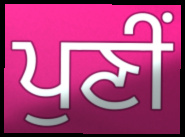
ਪੁਣੀਂ